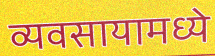
व्यवसायामध्ये